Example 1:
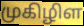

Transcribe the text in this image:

முகிழிள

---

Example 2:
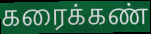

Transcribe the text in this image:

கரைக்கண்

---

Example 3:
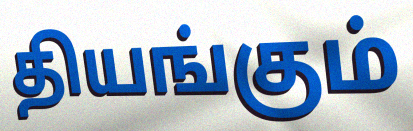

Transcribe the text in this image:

தியங்கும்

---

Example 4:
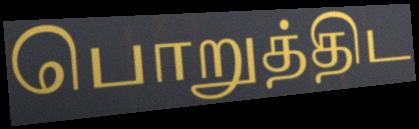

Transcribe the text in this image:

பொறுத்திட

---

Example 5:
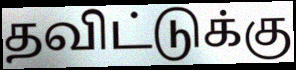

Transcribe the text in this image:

தவிட்டுக்கு